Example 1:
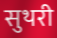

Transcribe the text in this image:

सुथरी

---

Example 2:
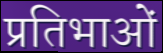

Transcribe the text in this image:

प्रतिभाओं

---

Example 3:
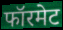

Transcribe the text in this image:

फॉरमेट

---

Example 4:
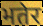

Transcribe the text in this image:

भतेर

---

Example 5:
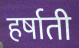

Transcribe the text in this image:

हर्षाती